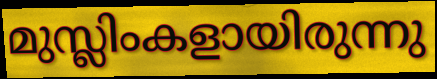
മുസ്ലിംകളായിരുന്നു